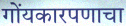
गोंयकारपणाचा